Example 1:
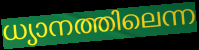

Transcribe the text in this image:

ധ്യാനത്തിലെന്ന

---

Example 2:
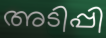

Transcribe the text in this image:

അടിപ്പി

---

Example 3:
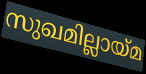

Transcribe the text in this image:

സുഖമില്ലായ്മ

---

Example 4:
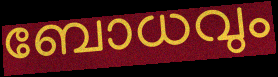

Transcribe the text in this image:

ബോധവും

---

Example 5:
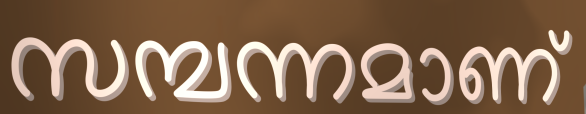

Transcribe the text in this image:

സമ്പന്നമാണ്